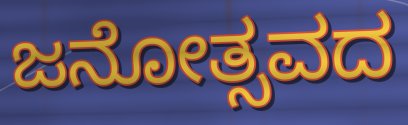
ಜನೋತ್ಸವದ